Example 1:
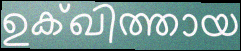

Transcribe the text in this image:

ഉക്ഖിത്തായ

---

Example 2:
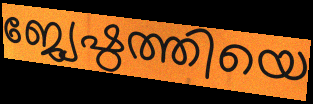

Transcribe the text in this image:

ജ്യേഷ്ഠത്തിയെ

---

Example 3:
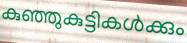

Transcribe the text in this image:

കുഞ്ഞുകുട്ടികൾക്കും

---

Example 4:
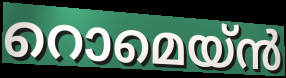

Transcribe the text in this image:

റൊമെയ്ൻ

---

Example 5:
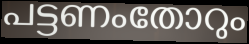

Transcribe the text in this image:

പട്ടണംതോറും